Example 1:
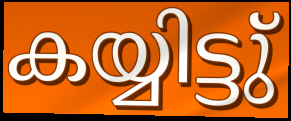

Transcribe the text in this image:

കയ്യിട്ടു്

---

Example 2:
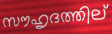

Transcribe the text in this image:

സൗഹൃദത്തില്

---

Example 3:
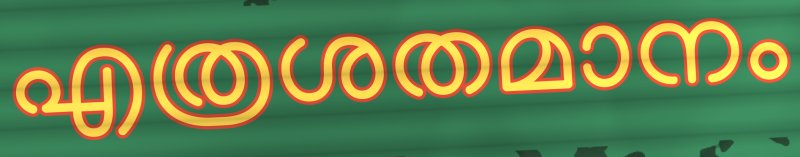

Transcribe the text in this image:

എത്രശതമാനം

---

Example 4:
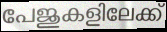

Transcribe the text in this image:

പേജുകളിലേക്ക്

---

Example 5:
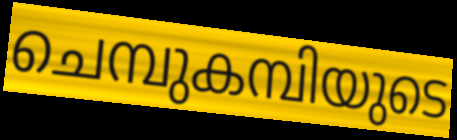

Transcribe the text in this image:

ചെമ്പുകമ്പിയുടെ